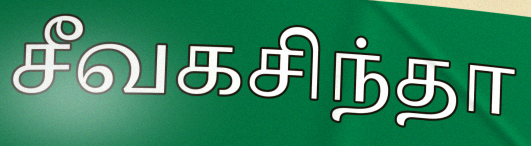
சீவகசிந்தா